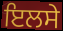
ਇਲਸੇ